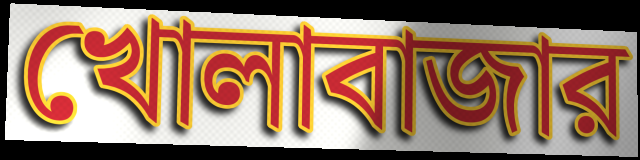
খোলাবাজার